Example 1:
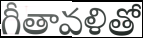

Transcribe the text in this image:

గీతావళితో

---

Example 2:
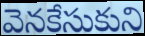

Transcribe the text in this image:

వెనకేసుకుని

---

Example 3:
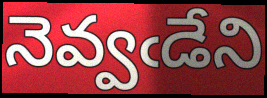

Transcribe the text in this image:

నెవ్వఁడేని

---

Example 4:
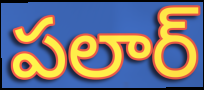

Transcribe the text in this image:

పలార్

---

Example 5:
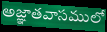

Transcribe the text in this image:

అజ్ఞాతవాసములో